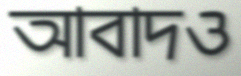
আবাদও